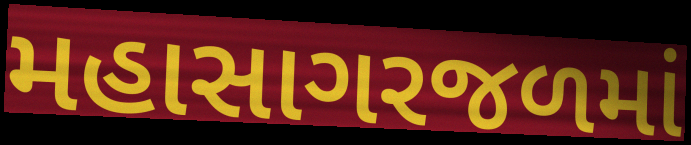
મહાસાગરજળમાં